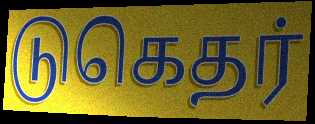
டுகெதர்